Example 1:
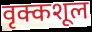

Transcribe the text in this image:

वृक्कशूल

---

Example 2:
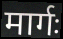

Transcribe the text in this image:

मार्गः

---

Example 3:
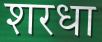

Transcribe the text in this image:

शरधा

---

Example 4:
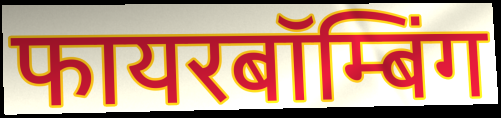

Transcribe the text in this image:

फायरबॉम्बिंग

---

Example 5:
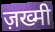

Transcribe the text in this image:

ज़ख्मी